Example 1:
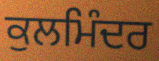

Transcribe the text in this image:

ਕੁਲਮਿੰਦਰ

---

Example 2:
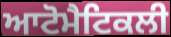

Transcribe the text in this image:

ਆਟੋਮੈਟਿਕਲੀ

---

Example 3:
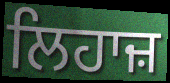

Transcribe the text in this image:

ਲਿਹਾਜ਼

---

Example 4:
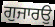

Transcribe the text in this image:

ਗੁਜਾਰਉ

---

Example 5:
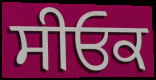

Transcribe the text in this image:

ਸੀਓਕ